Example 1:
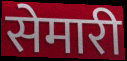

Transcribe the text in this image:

सेमारी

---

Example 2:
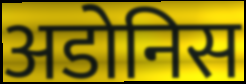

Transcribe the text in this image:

अडोनिस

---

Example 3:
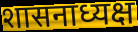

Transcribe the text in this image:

शासनाध्यक्ष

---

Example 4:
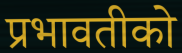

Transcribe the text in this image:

प्रभावतीको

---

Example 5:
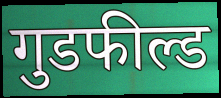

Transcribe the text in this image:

गुडफील्ड